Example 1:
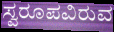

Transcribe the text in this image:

ಸ್ವರೂಪವಿರುವ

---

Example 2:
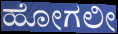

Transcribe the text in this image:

ಹೋಗಲೀ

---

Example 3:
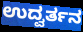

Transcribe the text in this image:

ಉದ್ವರ್ತನ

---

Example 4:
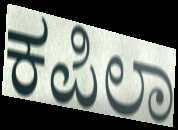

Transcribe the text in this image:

ಕಪಿಲಾ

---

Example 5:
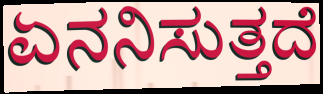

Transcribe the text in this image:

ಏನನಿಸುತ್ತದೆ